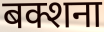
बक्शना